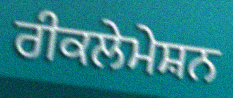
ਰੀਕਲੇਮੇਸ਼ਨ